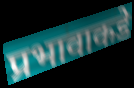
प्रभावाकडे